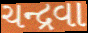
ચન્દ્રવા